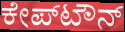
ಕೇಪ್‌ಟೌನ್